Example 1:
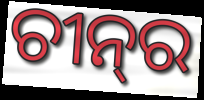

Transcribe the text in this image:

ଚୀନ୍‌ର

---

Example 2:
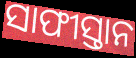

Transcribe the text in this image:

ସାଫୀସ୍ତାନ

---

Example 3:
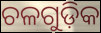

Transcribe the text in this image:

ଚଳଗୁଡ଼ିକ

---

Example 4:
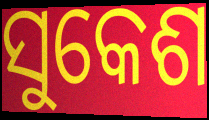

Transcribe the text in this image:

ସୁକେଶ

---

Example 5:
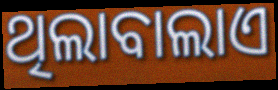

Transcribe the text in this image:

ଥିଲାବାଲାଏ